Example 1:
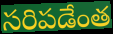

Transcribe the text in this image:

సరిపడేంత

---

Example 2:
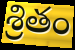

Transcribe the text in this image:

శ్రితం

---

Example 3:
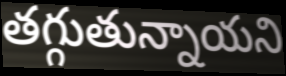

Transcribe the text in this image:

తగ్గుతున్నాయని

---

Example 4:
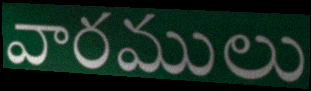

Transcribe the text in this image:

వారములు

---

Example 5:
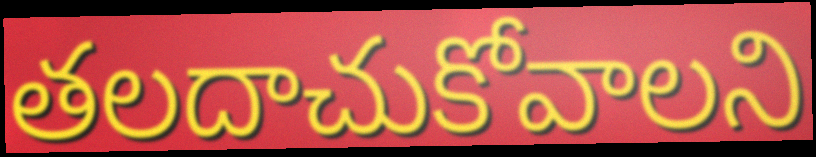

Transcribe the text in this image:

తలదాచుకోవాలని